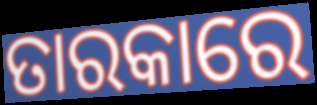
ତାରକାରେ